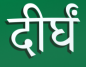
दीर्घं